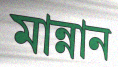
মান্নান